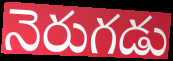
నెరుగడు